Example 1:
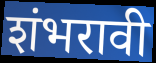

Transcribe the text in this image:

शंभरावी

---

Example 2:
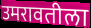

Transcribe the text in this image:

उमरावतीला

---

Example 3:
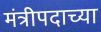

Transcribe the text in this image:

मंत्रीपदाच्या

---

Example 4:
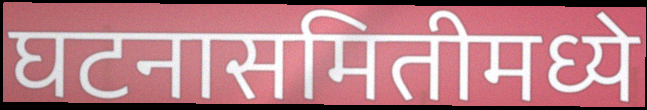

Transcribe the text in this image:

घटनासमितीमध्ये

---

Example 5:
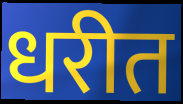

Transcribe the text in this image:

धरीत